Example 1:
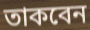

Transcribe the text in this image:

তাকবেন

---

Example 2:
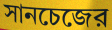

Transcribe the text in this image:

সানচেজের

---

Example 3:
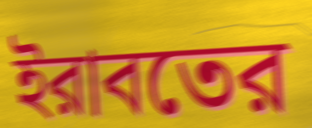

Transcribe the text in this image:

ইরাবতের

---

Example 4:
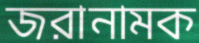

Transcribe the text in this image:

জরানামক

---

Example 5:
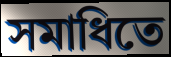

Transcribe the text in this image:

সমাধিতে